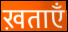
ख़ताएँ